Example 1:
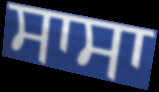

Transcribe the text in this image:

ਸਾਸਾ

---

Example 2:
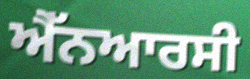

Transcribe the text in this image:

ਐੱਨਆਰਸੀ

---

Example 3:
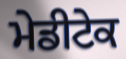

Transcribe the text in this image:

ਮੇਡੀਟੇਕ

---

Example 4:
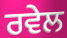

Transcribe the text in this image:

ਰਵੇਲ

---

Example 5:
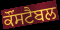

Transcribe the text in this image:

ਕੌਂਸਟੈਬਲ